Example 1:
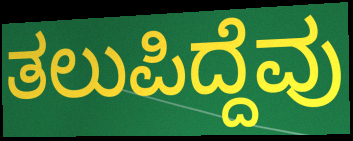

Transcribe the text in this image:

ತಲುಪಿದ್ದೆವು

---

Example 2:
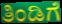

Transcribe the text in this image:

ತಿಂಡಿಗೆ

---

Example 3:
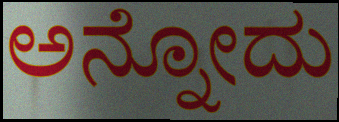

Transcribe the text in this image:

ಅನ್ನೋದು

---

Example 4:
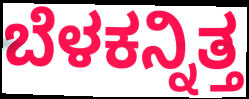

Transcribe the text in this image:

ಬೆಳಕನ್ನಿತ್ತ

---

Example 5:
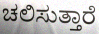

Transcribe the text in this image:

ಚಲಿಸುತ್ತಾರೆ